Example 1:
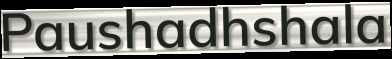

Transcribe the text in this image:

Paushadhshala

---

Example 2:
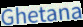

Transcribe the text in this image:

Ghetana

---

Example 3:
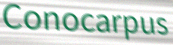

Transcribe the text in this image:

Conocarpus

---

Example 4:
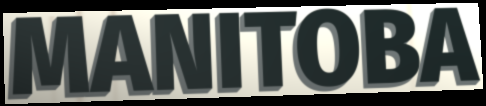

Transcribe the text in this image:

MANITOBA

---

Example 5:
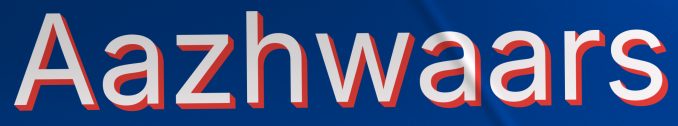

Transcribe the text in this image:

Aazhwaars